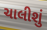
ચાલીશું